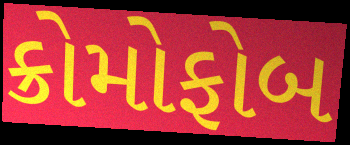
ક્રોમોફોબ